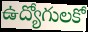
ఉద్యోగులకో